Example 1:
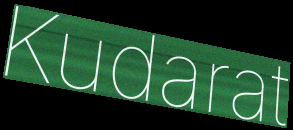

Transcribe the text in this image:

Kudarat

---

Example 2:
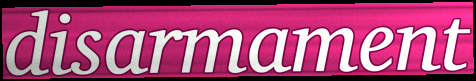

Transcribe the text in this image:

disarmament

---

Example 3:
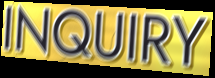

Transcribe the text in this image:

INQUIRY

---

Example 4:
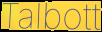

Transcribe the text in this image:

Talbott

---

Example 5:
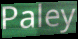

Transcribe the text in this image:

Paley